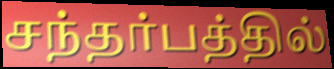
சந்தர்பத்தில்